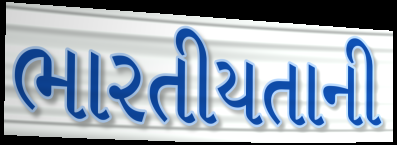
ભારતીયતાની